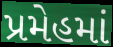
પ્રમેહમાં